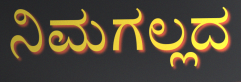
ನಿಮಗಲ್ಲದ